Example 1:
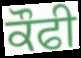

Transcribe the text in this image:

ਕੌਫੀ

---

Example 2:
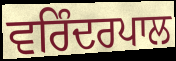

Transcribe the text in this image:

ਵਰਿੰਦਰਪਾਲ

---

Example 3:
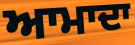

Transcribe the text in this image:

ਆਮਾਦਾ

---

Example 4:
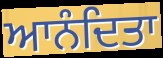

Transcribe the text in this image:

ਆਨੰਦਿਤਾ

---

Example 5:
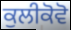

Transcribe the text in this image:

ਕੁਲੀਕੋਵੋ